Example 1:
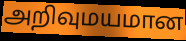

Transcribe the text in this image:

அறிவுமயமான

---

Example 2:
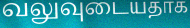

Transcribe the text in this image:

வலுவுடையதாக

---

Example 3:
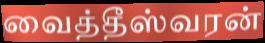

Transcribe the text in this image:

வைத்தீஸ்வரன்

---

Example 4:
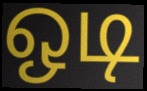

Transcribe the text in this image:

ஒடி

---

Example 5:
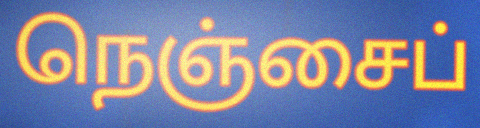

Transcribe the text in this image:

நெஞ்சைப்